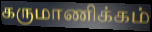
கருமாணிக்கம்